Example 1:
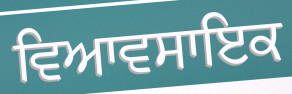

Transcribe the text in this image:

ਵਿਆਵਸਾਇਕ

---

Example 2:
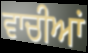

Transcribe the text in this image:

ਵਾਚੀਆਂ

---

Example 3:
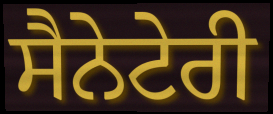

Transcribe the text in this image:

ਸੈਨੇਟੇਰੀ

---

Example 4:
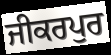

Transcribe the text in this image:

ਜੀਕਰਪੁਰ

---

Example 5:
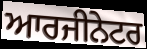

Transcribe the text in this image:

ਆਰਜੀਨੇਟਰ